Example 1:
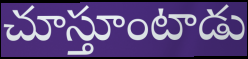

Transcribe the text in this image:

చూస్తూంటాడు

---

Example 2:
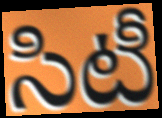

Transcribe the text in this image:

సిటీ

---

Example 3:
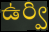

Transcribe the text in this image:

ఉర్వి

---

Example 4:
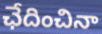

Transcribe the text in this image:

ఛేదించినా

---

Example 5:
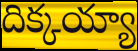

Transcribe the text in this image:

దిక్కయ్యా